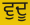
ਵੁਦੂ